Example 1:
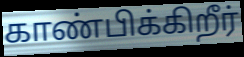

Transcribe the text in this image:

காண்பிக்கிறீர்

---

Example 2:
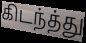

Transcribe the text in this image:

கிடந்த்து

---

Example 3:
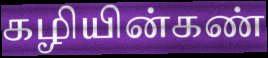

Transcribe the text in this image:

கழியின்கண்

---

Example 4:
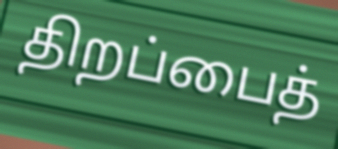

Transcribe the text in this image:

திறப்பைத்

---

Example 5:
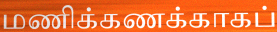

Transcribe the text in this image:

மணிக்கணக்காகப்